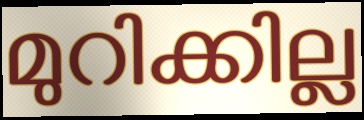
മുറിക്കില്ല